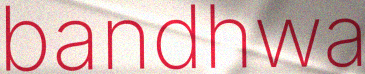
bandhwa